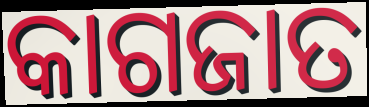
କାଗଜାତ